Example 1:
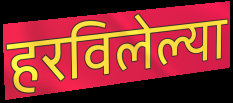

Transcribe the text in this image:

हरविलेल्या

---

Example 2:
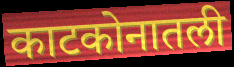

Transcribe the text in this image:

काटकोनातली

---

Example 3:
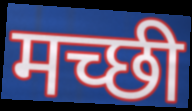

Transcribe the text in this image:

मच्छी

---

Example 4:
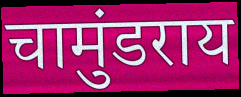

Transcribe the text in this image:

चामुंडराय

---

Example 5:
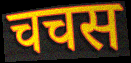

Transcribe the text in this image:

चचस